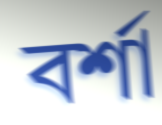
বর্শা